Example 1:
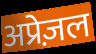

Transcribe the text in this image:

अप्रेज़ल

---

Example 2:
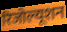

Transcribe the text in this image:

रिजोल्यूशन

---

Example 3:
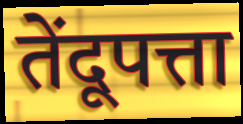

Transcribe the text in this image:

तेंदूपत्ता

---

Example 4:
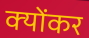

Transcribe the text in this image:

क्‍योंकर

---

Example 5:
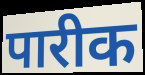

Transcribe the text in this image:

पारीक